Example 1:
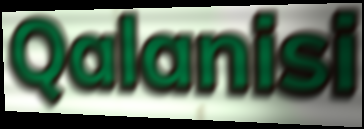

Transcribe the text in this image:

Qalanisi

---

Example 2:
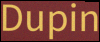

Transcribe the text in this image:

Dupin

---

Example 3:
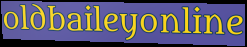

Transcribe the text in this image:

oldbaileyonline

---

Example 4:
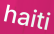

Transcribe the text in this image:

haiti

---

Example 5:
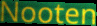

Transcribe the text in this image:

Nooten